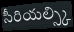
సీరియల్స్కి